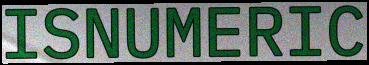
ISNUMERIC